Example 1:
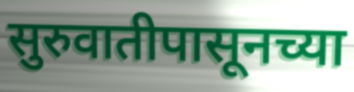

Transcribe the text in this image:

सुरुवातीपासूनच्या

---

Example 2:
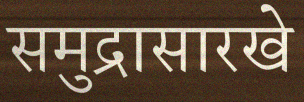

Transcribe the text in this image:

समुद्रासारखे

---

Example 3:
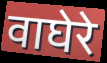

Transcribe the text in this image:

वाघेरे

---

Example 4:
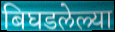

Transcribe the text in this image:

बिघडलेल्या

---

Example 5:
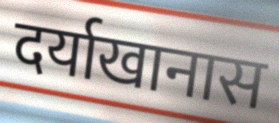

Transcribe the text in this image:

दर्याखानास